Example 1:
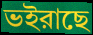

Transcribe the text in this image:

ভইরাছে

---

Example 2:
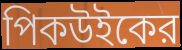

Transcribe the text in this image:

পিকউইকের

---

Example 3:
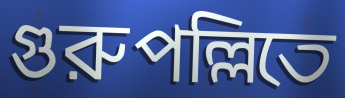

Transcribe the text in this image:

গুরুপল্লিতে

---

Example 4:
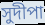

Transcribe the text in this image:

সুদীপা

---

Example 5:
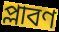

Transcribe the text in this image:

প্লাবণ